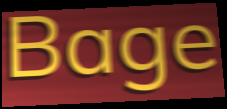
Bage